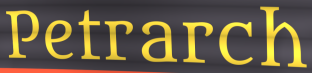
Petrarch